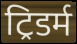
ट्रिडर्म